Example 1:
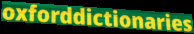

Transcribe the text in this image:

oxforddictionaries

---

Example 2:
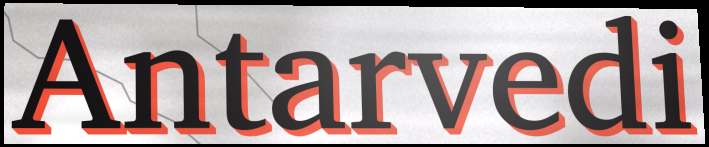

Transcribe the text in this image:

Antarvedi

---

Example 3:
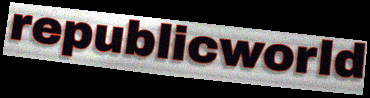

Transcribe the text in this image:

republicworld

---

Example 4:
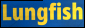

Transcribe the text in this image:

Lungfish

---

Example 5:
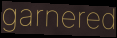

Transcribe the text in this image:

garnered